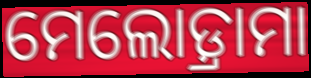
ମେଲୋଡ଼୍ରାମା